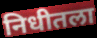
निधीतला